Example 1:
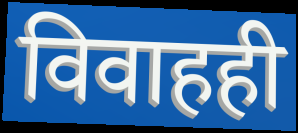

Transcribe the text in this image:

विवाहही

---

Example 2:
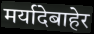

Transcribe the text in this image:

मर्यादेबाहेर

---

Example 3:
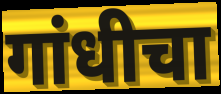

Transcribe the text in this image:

गांधीचा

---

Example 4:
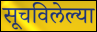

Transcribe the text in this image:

सूचविलेल्या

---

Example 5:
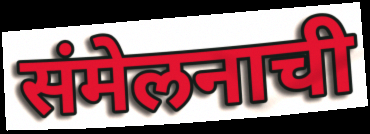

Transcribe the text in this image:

संमेलनाची